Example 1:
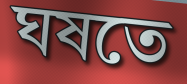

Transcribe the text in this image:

ঘষতে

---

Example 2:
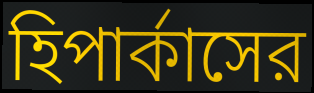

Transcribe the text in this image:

হিপার্কাসের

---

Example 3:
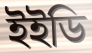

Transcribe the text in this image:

ইইডি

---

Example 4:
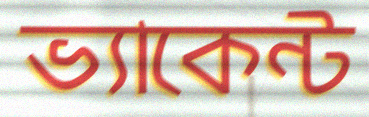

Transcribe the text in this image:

ভ্যাকেন্ট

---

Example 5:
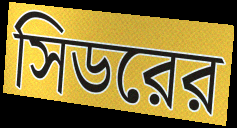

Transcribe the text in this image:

সিডরের